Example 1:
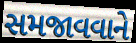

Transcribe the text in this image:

સમજાવવાને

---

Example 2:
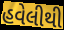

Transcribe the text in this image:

હવેલીથી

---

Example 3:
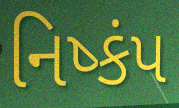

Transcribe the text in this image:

નિષ્કંપ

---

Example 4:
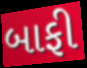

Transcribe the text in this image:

બાફી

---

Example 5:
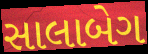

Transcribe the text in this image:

સાલાબેગ